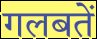
गलबतें